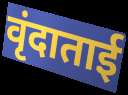
वृंदाताई